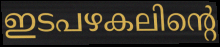
ഇടപഴകലിന്റെ